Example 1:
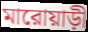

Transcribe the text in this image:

মারোয়াড়ী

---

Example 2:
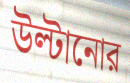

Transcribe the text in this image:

উল্টানোর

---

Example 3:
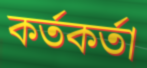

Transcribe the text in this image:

কর্তকর্তা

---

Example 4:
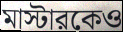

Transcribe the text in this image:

মাস্টারকেও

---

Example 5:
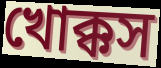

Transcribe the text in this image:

খোক্কস